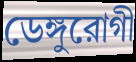
ডেঙ্গুরোগী